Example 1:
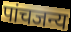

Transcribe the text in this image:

पांचजन्य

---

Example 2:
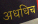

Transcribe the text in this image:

अधधिच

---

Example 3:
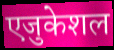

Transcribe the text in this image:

एजुकेशल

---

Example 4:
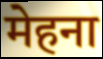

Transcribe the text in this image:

मेहना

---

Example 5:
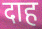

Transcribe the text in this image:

दाह